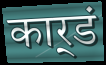
कार्डं